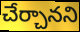
చేర్చానని